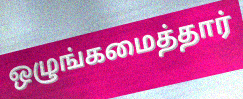
ஒழுங்கமைத்தார்